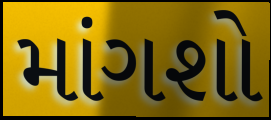
માંગશો